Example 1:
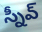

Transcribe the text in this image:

స్నీవ్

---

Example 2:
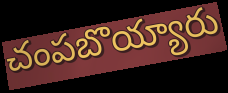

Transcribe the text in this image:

చంపబొయ్యారు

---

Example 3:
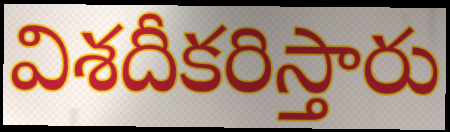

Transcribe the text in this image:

విశదీకరిస్తారు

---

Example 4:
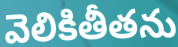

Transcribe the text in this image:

వెలికితీతను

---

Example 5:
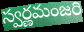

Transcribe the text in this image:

స్వర్ణమంజరి